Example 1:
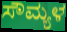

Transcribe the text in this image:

ಸೌಮ್ಯಳ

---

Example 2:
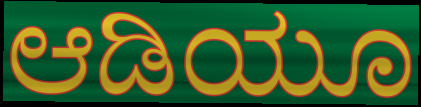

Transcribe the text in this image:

ಆಡಿಯೂ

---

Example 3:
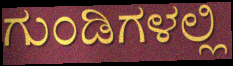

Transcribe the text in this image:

ಗುಂಡಿಗಳಲ್ಲಿ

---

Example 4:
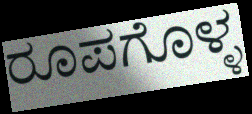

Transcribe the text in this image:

ರೂಪಗೊಳ್ಳ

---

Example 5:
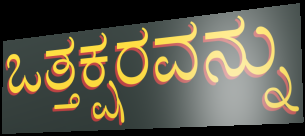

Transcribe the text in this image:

ಒತ್ತಕ್ಷರವನ್ನು